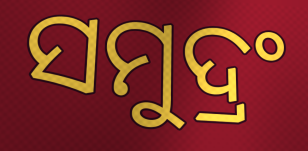
ସମୁଦ୍ରଂ